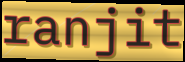
ranjit